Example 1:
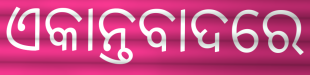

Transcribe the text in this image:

ଏକାନ୍ତବାଦରେ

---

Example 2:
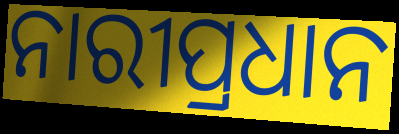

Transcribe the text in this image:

ନାରୀପ୍ରଧାନ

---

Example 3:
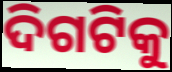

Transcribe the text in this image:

ଦିଗଟିକୁ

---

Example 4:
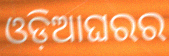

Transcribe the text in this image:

ଓଡ଼ିଆଘରର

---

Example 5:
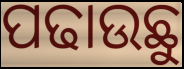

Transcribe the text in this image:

ପଢାଉଛୁ